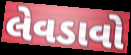
લેવડાવો